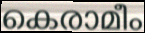
കെരാമീം